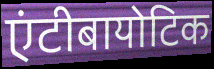
एंटीबायोटिक